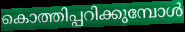
കൊത്തിപ്പറിക്കുമ്പോൾ